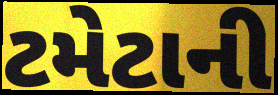
ટમેટાની